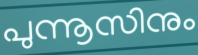
പുന്നൂസിനും